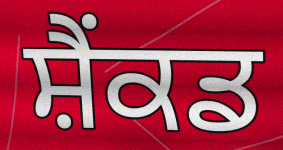
ਸ਼ੈਂਕਡ